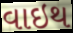
વાઇથ